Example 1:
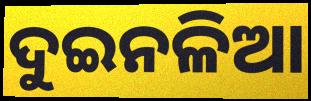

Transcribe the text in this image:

ଦୁଇନଳିଆ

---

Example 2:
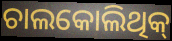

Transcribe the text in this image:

ଚାଲକୋଲିଥିକ୍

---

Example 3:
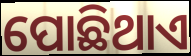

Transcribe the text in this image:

ପୋଛିଥାଏ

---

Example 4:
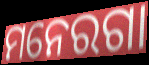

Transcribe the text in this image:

ମନେରଗା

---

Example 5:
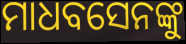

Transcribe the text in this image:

ମାଧବସେନଙ୍କୁ